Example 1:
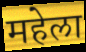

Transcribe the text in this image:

महेला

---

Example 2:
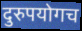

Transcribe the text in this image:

दुरुपयोगच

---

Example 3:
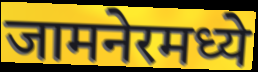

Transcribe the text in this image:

जामनेरमध्ये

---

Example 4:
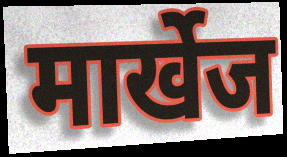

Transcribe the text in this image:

मार्खेज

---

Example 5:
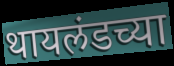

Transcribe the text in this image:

थायलंडच्या